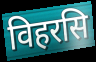
विहरसि